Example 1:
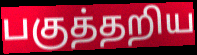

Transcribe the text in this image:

பகுத்தறிய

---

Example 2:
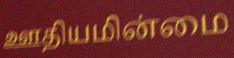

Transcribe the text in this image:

ஊதியமின்மை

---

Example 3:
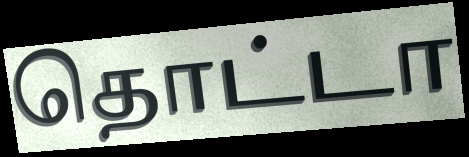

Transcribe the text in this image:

தொட்டா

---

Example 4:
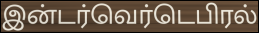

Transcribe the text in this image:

இன்டர்வெர்டெபிரல்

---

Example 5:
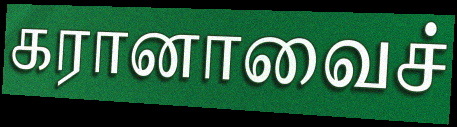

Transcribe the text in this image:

கரானாவைச்